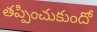
తప్పించుకుందో